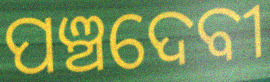
ପଞ୍ଚଦେବୀ